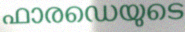
ഫാരഡെയുടെ